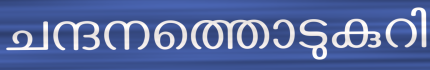
ചന്ദനത്തൊടുകുറി